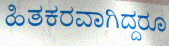
ಹಿತಕರವಾಗಿದ್ದರೂ